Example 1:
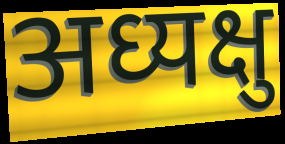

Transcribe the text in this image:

अध्यक्षु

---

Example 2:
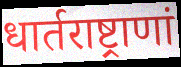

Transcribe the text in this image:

धार्तराष्ट्राणां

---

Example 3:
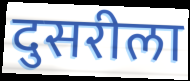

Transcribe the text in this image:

दुसरीला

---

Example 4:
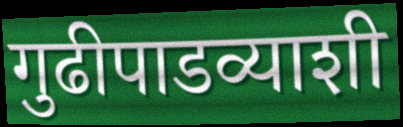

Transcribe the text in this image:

गुढीपाडव्याशी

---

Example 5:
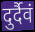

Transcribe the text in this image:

दुर्दैवं